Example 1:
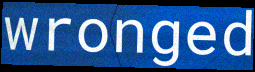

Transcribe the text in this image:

wronged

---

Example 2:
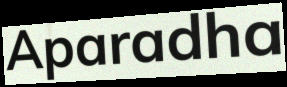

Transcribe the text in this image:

Aparadha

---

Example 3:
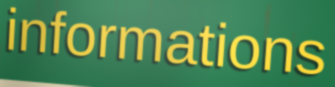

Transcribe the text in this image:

informations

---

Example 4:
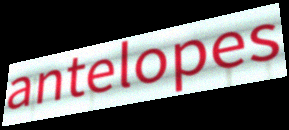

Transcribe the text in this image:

antelopes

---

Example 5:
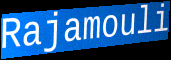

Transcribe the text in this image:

Rajamouli